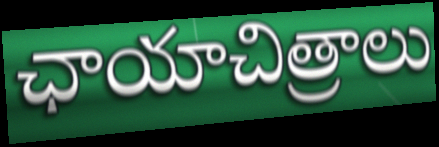
ఛాయాచిత్రాలు